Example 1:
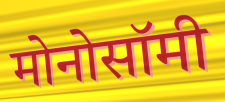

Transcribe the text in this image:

मोनोसॉमी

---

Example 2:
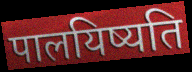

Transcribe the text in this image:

पालयिष्यति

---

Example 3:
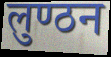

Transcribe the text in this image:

लुण्ठन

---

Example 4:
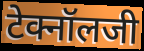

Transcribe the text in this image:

टेक्नॉलजी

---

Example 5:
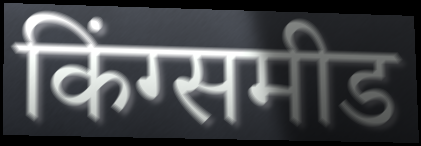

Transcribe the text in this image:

किंग्समीड